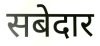
सबेदार